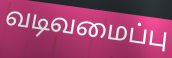
வடிவமைப்பு